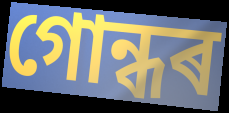
গোন্ধৰ